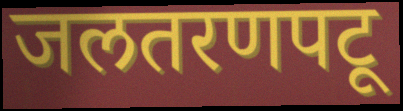
जलतरणपटू